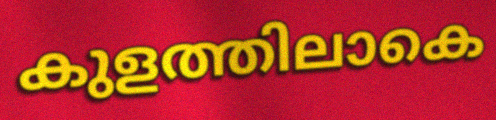
കുളത്തിലാകെ